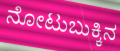
ನೋಟುಬುಕ್ಕಿನ